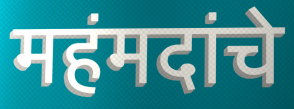
महंमदांचे